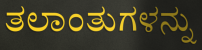
ತಲಾಂತುಗಳನ್ನು